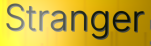
Stranger